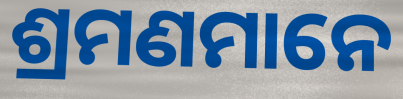
ଶ୍ରମଣମାନେ